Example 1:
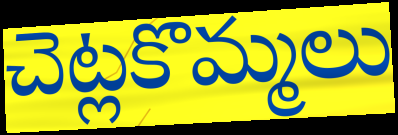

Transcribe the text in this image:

చెట్లకొమ్మలు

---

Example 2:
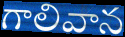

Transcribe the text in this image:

గాలివాన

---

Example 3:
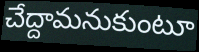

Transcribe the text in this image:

చేద్దామనుకుంటూ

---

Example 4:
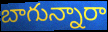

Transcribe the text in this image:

బాగున్నారా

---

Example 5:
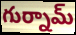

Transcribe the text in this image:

గుర్నామ్